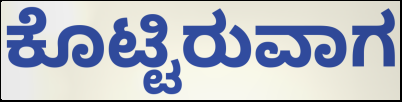
ಕೊಟ್ಟಿರುವಾಗ